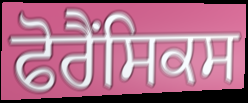
ਫੋਰੈਂਸਿਕਸ